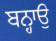
ਬਨ੍ਹਾਉ